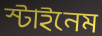
স্টাইনেম